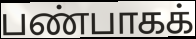
பண்பாகக்